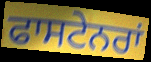
ਫਾਸਟੇਨਰਾਂ